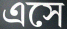
এসে